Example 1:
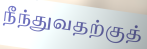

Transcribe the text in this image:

நீந்துவதற்குத்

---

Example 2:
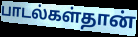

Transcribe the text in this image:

பாடல்கள்தான்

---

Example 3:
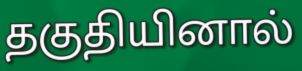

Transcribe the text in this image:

தகுதியினால்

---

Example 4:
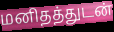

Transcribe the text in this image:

மனிதத்துடன்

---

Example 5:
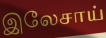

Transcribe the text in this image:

இலேசாய்